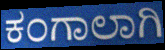
ಕಂಗಾಲಾಗಿ